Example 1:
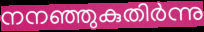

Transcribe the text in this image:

നനഞ്ഞുകുതിർന്നു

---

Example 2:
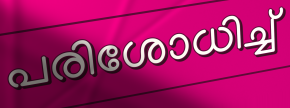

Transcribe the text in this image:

പരിശോധിച്ച്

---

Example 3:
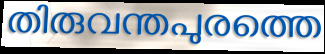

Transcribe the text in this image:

തിരുവന്തപുരത്തെ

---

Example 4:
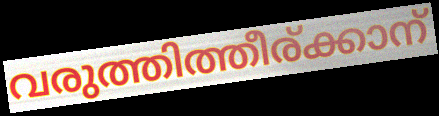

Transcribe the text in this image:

വരുത്തിത്തീര്ക്കാന്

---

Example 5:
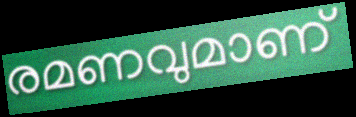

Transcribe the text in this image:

രമണവുമാണ്